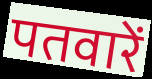
पतवारें